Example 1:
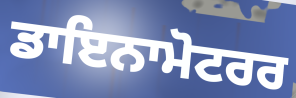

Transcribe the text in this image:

ਡਾਇਨਾਮੋਟਰਰ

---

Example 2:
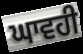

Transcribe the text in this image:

ਘਾਵਹੀ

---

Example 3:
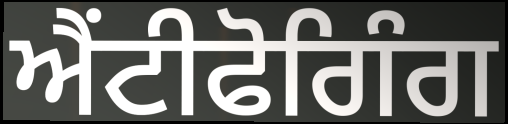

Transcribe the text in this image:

ਐਂਟੀਫੋਗਿੰਗ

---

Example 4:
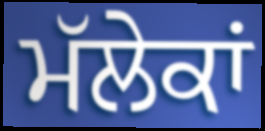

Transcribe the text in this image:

ਮੱਲੇਕਾਂ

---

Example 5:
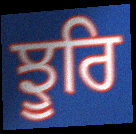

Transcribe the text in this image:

ਝੂਰਿ